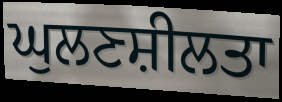
ਘੁਲਣਸ਼ੀਲਤਾ